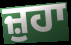
ਜ਼ੁਹਾ